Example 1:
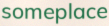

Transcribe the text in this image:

someplace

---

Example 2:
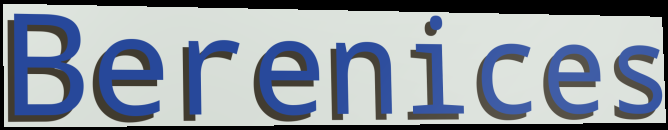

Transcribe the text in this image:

Berenices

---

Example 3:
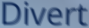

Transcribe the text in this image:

Divert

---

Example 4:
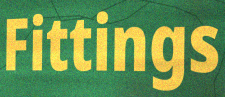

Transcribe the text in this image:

Fittings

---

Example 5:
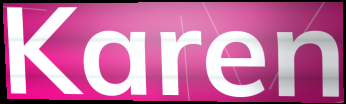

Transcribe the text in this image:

Karen